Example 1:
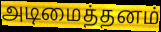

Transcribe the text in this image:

அடிமைத்தனம்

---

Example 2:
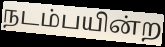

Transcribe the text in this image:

நடம்பயின்ற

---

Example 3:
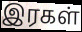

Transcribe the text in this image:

இரகள்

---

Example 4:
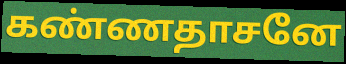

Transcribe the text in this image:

கண்ணதாசனே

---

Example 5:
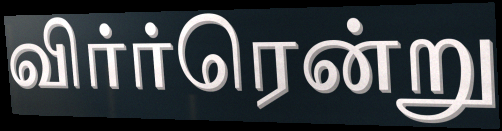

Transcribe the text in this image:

விர்ர்ரென்று